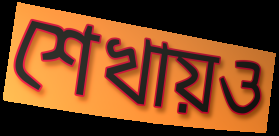
শেখায়ও